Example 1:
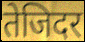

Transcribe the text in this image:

तेजिदर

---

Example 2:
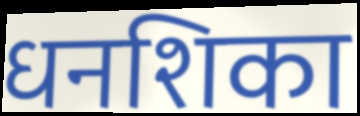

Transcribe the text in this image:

धनशिका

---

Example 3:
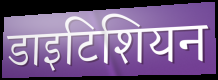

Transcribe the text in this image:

डाइटिशियन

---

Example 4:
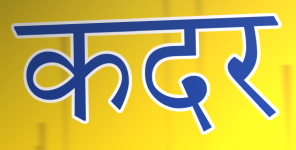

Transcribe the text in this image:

कदर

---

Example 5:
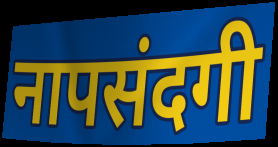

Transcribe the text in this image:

नापसंदगी